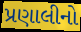
પ્રણાલીનો